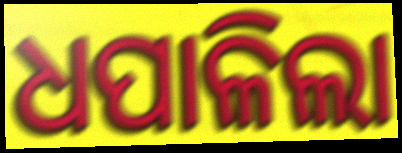
ଧପାଳିଲା